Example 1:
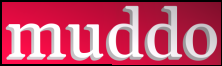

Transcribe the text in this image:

muddo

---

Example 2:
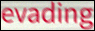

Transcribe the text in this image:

evading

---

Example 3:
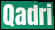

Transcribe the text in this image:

Qadri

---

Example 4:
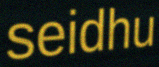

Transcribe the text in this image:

seidhu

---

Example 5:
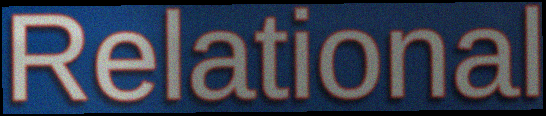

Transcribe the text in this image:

Relational